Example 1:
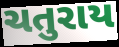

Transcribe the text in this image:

ચતુરાય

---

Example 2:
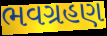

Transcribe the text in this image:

ભવગ્રહણ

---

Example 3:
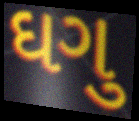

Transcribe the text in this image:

ઘગુ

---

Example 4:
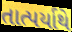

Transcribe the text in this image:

તાત્પર્યાથે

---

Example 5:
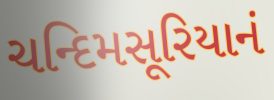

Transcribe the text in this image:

ચન્દિમસૂરિયાનં